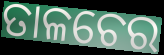
ତାଳଚେର